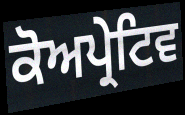
ਕੋਅਪ੍ਰੇਟਿਵ